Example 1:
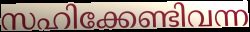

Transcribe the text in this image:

സഹിക്കേണ്ടിവന്ന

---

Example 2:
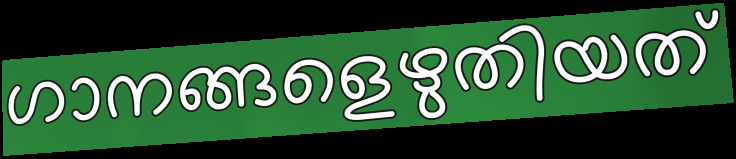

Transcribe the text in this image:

ഗാനങ്ങളെഴുതിയത്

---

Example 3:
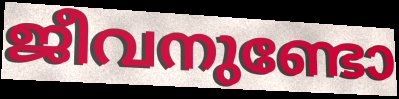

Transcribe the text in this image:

ജീവനുണ്ടോ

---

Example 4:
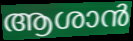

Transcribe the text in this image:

ആശാൻ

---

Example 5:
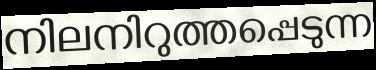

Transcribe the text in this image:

നിലനിറുത്തപ്പെടുന്ന